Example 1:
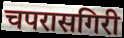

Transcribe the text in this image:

चपरासगिरी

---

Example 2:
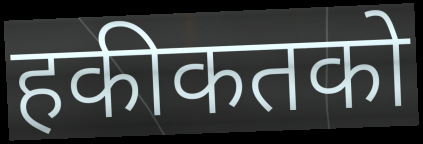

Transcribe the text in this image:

हकीकतको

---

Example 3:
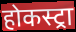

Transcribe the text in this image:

होकस्ट्रा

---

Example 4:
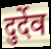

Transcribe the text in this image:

दुर्देव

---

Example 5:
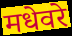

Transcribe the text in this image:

मधेवरे